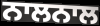
ਨਾਲਨਾਲ